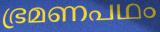
ഭ്രമണപഥം